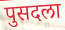
पुसदला